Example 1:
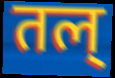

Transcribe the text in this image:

तल्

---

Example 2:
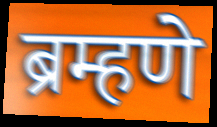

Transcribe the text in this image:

ब्रम्हणे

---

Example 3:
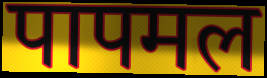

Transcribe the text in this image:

पापमल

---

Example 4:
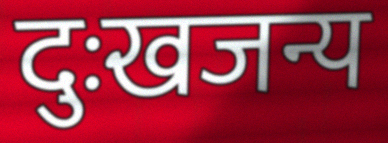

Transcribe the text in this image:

दुःखजन्य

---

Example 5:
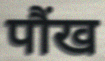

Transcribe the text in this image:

पौंख